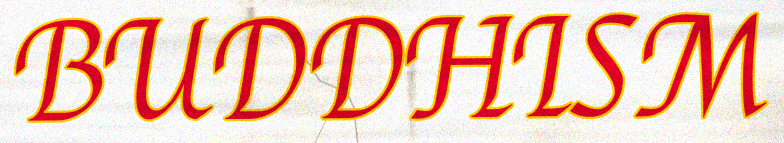
BUDDHISM